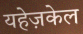
यहेज़केल